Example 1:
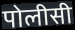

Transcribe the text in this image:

पोलीसी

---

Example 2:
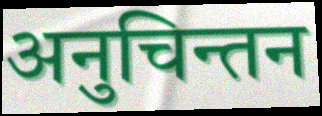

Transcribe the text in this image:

अनुचिन्तन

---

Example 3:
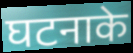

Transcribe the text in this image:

घटनाके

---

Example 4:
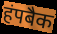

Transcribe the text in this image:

हंपबैक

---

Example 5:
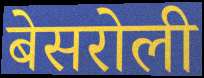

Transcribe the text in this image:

बेसरोली